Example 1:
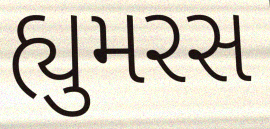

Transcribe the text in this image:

હ્યુમરસ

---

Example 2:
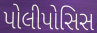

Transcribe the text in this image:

પોલીપોસિસ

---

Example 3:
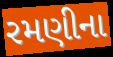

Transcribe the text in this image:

રમણીના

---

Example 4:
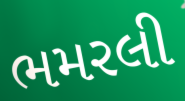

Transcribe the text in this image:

ભમરલી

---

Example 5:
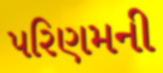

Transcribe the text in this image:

પરિણમની